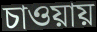
চাওয়ায়